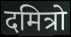
दमित्रो